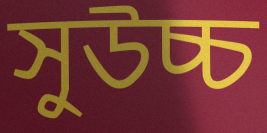
সুউচ্চ